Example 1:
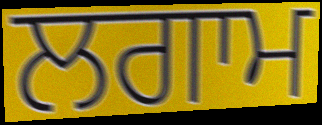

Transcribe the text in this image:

ਲਗਾਮ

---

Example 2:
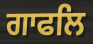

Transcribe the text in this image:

ਗਾਫਲਿ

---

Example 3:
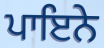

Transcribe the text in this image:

ਪਾਇਨੇ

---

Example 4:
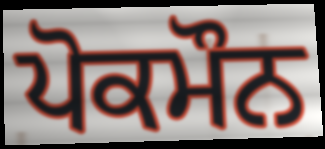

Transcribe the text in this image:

ਪੋਕਮੌਨ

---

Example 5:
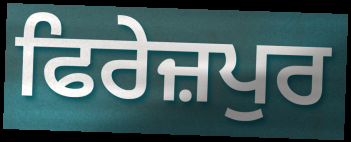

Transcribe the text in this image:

ਫਿਰੇਜ਼ਪੁਰ